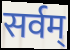
सर्वम्